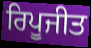
ਰਿਪੂਜੀਤ